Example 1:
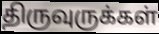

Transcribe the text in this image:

திருவுருக்கள்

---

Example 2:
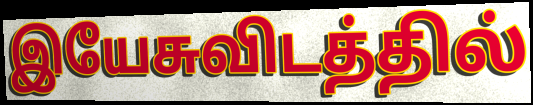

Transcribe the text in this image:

இயேசுவிடத்தில்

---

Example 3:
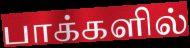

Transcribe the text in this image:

பாக்களில்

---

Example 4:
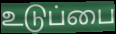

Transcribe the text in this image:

உடுப்பை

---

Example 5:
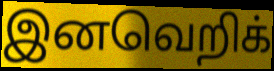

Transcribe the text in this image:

இனவெறிக்